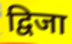
द्विजा